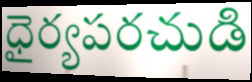
ధైర్యపరచుడి